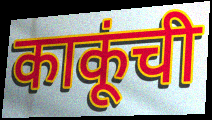
काकूंची